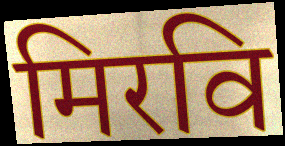
मिरवि